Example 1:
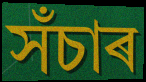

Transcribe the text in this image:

সঁচাৰ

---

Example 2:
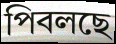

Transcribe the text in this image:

পিবলছে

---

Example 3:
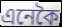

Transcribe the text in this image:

এনেকৈ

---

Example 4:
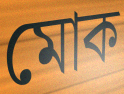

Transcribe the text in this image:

মোক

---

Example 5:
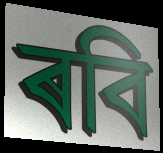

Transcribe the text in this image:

ৰবি